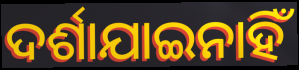
ଦର୍ଶାଯାଇନାହିଁ